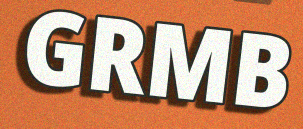
GRMB